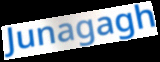
Junagagh